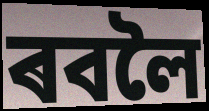
ৰবলৈ